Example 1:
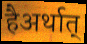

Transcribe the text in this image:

हैअर्थात्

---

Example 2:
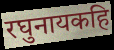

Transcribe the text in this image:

रघुनायकहि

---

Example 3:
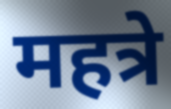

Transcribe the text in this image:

महत्रे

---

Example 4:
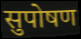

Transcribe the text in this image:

सुपोषण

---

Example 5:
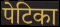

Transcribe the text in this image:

पेटिका